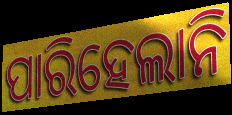
ପାରିହେଲାନି